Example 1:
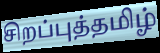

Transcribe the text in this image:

சிறப்புத்தமிழ்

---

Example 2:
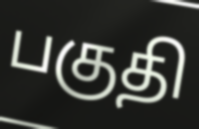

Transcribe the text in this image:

பகுதி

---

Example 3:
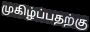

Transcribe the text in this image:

முகிழ்ப்பதற்கு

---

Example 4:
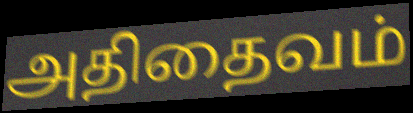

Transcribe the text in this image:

அதிதைவம்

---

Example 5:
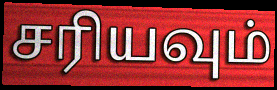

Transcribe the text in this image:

சரியவும்